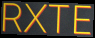
RXTE